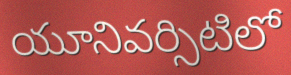
యూనివర్సిటిలో